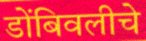
डोंबिवलीचे